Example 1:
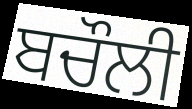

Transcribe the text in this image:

ਬਚੌਲੀ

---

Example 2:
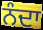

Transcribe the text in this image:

ਨੰਦਾ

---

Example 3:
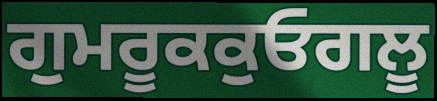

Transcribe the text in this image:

ਗੁਮਰੂਕਕੁਓਗਲੂ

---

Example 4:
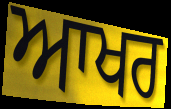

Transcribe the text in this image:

ਆਖਰ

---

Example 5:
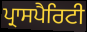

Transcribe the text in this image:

ਪ੍ਰਾਸਪੈਰਿਟੀ